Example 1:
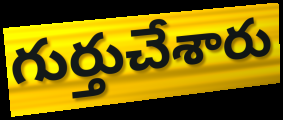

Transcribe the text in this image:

గుర్తుచేశారు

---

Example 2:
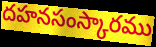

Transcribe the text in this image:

దహనసంస్కారము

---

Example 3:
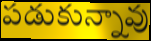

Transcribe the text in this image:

పడుకున్నావు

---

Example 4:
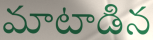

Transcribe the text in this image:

మాటాడిన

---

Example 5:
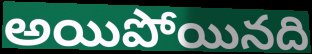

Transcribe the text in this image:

అయిపోయినది